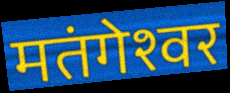
मतंगेश्वर